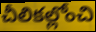
చీలికల్లోంచి